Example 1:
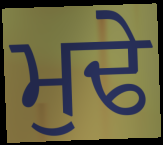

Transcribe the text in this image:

ਮੁਢੇ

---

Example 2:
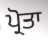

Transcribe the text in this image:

ਪ੍ਰੋਤਾ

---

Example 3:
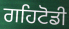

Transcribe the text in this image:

ਗਹਿਟੋਡੀ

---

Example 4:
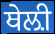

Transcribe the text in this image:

ਥੇਲ਼ੀ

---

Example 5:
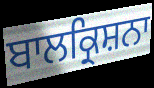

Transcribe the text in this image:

ਬਾਲਕ੍ਰਿਸ਼ਨਾ